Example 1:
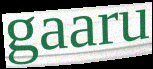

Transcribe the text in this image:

gaaru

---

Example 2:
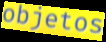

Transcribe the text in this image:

objetos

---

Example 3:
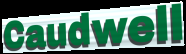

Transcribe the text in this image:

Caudwell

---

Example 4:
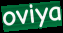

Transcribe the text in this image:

oviya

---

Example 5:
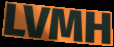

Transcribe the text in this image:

LVMH